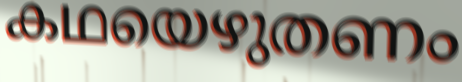
കഥയെഴുതണം